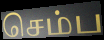
செம்ப